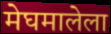
मेघमालेला